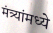
मंत्र्यांमध्ये